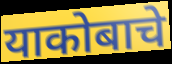
याकोबाचे